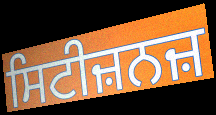
ਸਿਟੀਜ਼ਨਜ਼